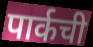
पार्कची